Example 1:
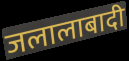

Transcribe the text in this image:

जलालाबादी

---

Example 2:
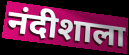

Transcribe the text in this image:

नंदीशाला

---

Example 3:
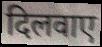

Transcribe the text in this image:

दिलवाए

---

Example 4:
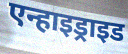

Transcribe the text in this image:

एन्हाइड्राइड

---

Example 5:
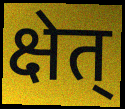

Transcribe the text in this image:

क्षेत्